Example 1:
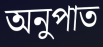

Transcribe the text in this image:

অনুপাত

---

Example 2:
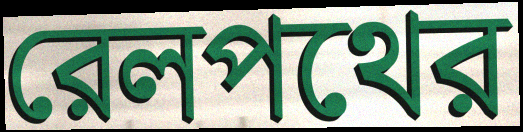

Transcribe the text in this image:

রেলপথের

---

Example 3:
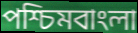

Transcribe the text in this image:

পশ্চিমবাংলা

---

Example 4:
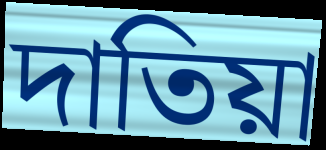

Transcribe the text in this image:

দাতিয়া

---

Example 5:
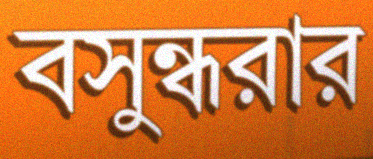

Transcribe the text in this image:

বসুন্ধরার